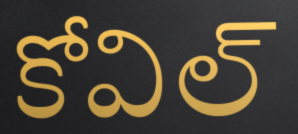
కోవిల్